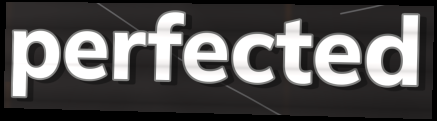
perfected